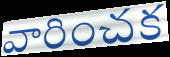
వారించక